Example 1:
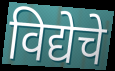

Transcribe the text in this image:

विद्येचे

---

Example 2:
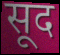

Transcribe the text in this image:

सूद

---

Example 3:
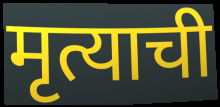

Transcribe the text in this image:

मृत्याची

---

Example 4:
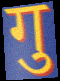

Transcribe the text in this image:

गु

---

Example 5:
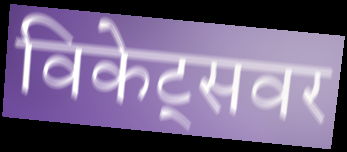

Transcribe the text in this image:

विकेट्सवर